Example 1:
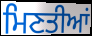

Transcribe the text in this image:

ਮਿਣਤੀਆਂ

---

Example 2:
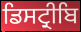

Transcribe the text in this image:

ਡਿਸਟ੍ਰੀਬਿ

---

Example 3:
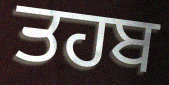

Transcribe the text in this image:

ਤਹਬ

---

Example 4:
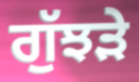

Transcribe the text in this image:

ਗੁੱਝੜੇ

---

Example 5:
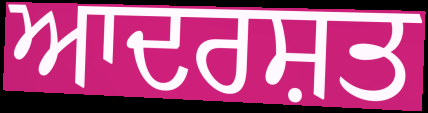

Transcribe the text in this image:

ਆਦਰਸ਼ਤ